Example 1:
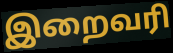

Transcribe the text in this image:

இறைவரி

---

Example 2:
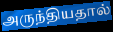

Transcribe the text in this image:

அருந்தியதால்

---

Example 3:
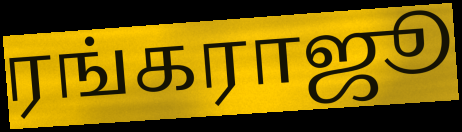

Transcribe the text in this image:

ரங்கராஜூ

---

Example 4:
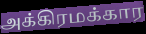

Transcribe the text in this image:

அக்கிரமக்கார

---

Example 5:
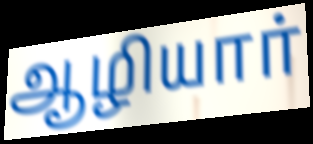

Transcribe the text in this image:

ஆழியார்